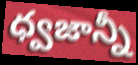
ధ్వజాన్నీ